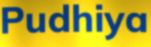
Pudhiya